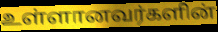
உள்ளானவர்களின்